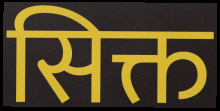
सिक्त